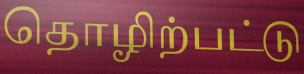
தொழிற்பட்டு